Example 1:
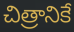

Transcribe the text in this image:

చిత్రానికే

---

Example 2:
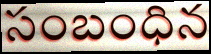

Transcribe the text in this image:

సంబంధిన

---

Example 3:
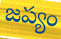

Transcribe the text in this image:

జప్యం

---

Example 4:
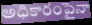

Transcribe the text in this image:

అధికారంపైనా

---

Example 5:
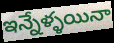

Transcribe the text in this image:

ఇన్నేళ్ళయినా